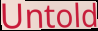
Untold